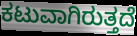
ಕಟುವಾಗಿರುತ್ತದೆ